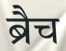
ब्रैच